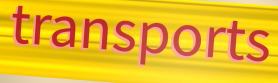
transports